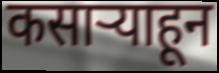
कसाऱ्याहून